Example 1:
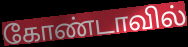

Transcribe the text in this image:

கோண்டாவில்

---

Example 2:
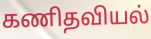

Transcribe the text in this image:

கணிதவியல்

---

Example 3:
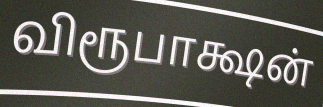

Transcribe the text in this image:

விரூபாக்ஷன்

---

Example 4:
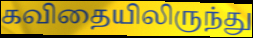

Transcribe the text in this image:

கவிதையிலிருந்து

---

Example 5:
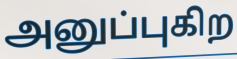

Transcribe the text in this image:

அனுப்புகிற